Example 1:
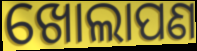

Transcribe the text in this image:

ଖୋଲାପଣ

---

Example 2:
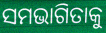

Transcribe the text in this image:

ସମଭାଗିତାକୁ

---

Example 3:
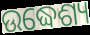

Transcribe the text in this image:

ଉଦ୍ଧେଶ୍ୟ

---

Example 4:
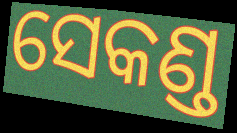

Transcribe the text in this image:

ସେକଣ୍ଡ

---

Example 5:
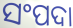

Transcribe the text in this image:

ସଂପଦା